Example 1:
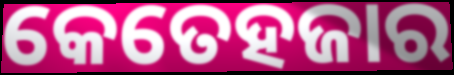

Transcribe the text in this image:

କେତେହଜାର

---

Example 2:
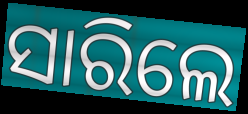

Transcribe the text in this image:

ସାରିଲେ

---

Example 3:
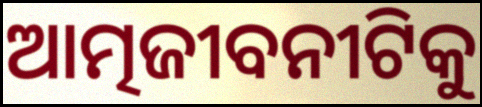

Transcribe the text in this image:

ଆତ୍ମଜୀବନୀଟିକୁ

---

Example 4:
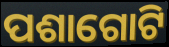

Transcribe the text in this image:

ପଶାଗୋଟି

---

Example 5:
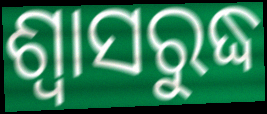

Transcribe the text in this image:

ଶ୍ବାସରୁଦ୍ଧ